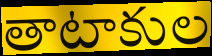
తాటాకుల